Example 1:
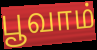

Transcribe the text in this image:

பூவாம்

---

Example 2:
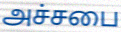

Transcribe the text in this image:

அச்சபை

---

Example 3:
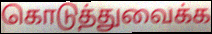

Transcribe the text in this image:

கொடுத்துவைக்க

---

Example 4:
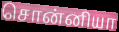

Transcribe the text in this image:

சொன்னியா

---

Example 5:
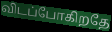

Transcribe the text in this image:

விடப்போகிறதே